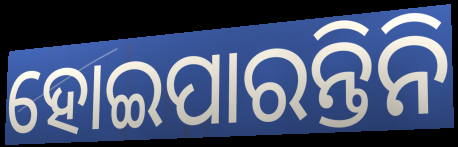
ହୋଇପାରନ୍ତିନି